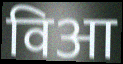
विआ